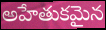
అహేతుకమైన